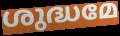
ശുദ്ധമേ